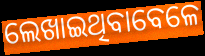
ଲେଖାଇଥିବାବେଳେ